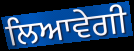
ਲਿਆਵੇਗੀ